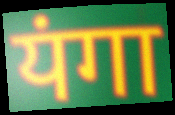
यंगा